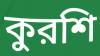
কুরশি